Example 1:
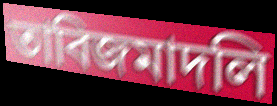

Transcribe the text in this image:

তাবিজমাদলি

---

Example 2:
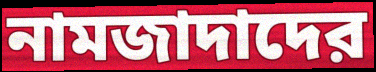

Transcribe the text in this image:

নামজাদাদের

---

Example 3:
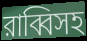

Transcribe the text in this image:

রাব্বিসহ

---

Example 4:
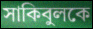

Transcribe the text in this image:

সাকিবুলকে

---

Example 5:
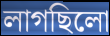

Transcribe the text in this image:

লাগছিলো